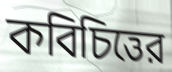
কবিচিত্তের